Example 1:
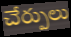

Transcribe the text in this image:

చేర్పులు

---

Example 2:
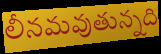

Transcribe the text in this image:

లీనమవుతున్నది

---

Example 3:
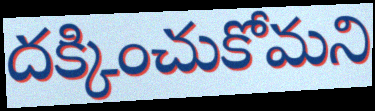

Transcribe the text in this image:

దక్కించుకోమని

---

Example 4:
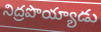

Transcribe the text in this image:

నిద్రపొయ్యాడు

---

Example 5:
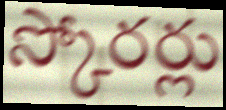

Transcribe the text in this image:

స్కోరర్లు